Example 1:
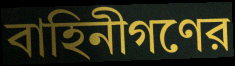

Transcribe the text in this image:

বাহিনীগণের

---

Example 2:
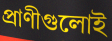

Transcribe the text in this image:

প্রাণীগুলোই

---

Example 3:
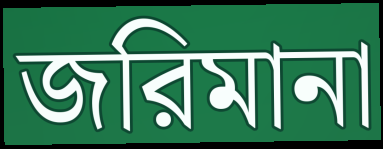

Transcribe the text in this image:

জরিমানা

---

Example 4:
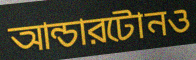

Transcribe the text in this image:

আন্ডারটোনও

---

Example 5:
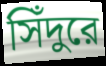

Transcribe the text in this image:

সিঁদুরে